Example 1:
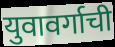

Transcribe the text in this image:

युवावर्गाची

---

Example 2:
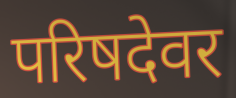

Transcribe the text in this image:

परिषदेवर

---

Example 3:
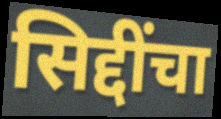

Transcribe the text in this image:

सिद्दींचा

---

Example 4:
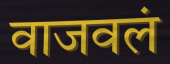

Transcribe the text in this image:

वाजवलं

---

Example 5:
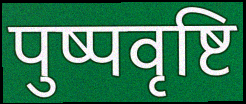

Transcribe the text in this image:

पुष्पवृष्टि